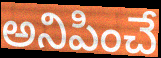
అనిపించే